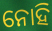
ନୋହି